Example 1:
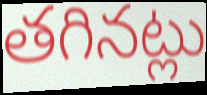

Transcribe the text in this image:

తగినట్లు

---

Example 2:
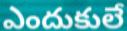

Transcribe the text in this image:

ఎందుకులే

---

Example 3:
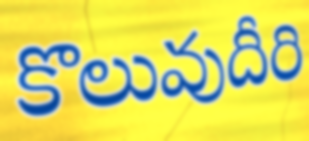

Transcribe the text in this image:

కొలువుదీరి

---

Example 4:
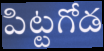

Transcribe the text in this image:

పిట్టగోడ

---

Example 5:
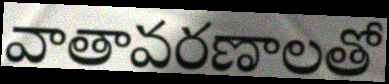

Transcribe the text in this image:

వాతావరణాలతో